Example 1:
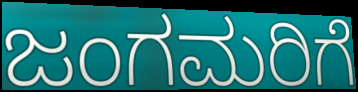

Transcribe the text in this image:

ಜಂಗಮರಿಗೆ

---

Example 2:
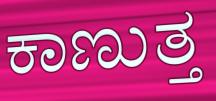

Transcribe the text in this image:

ಕಾಣುತ್ತ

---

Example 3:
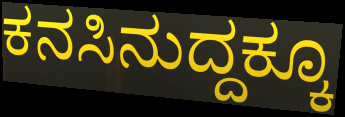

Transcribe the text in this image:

ಕನಸಿನುದ್ದಕ್ಕೂ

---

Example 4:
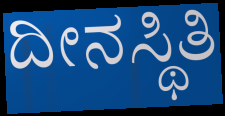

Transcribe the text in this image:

ದೀನಸ್ಥಿತಿ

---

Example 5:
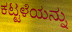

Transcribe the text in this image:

ಕಟ್ಟಳೆಯನ್ನು